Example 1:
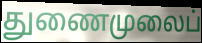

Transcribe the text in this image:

துணைமுலைப்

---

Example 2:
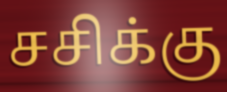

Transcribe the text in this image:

சசிக்கு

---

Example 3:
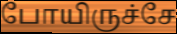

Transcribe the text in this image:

போயிருச்சே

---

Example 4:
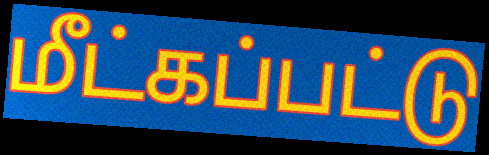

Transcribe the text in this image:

மீட்கப்பட்டு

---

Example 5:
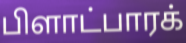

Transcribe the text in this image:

பிளாட்பாரக்